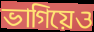
ভাগিয়েও